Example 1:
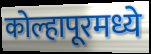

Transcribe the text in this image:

कोल्हापूरमध्ये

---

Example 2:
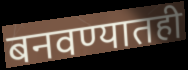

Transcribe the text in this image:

बनवण्यातही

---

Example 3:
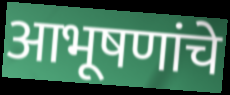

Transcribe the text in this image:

आभूषणांचे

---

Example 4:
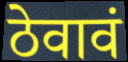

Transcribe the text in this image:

ठेवावं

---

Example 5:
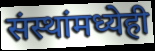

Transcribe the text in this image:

संस्थांमध्येही